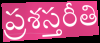
ప్రశస్తరీతి